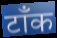
टॉंक